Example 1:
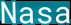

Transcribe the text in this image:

Nasa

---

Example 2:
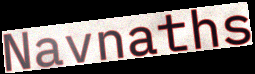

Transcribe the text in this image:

Navnaths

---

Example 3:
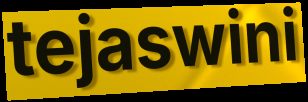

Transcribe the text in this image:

tejaswini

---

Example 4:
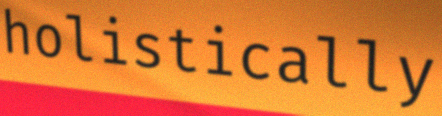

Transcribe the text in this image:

holistically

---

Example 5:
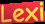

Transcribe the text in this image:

Lexi